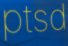
ptsd